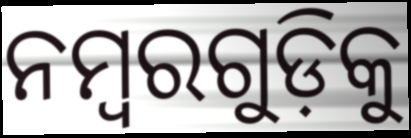
ନମ୍ବରଗୁଡ଼ିକୁ